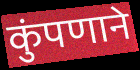
कुंपणाने